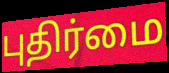
புதிர்மை